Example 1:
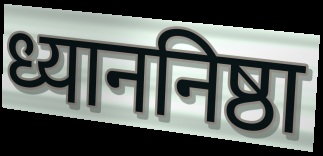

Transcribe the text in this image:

ध्याननिष्ठा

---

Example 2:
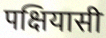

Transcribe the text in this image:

पक्षियासी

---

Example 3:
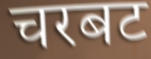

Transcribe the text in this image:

चरबट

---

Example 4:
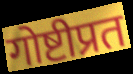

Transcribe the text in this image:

गोष्टीप्रत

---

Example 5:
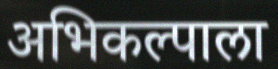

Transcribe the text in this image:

अभिकल्पाला